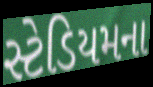
સ્ટેડિયમના